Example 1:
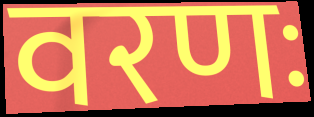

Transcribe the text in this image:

वरणः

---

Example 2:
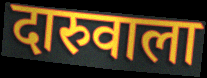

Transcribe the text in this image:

दारुवाला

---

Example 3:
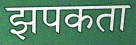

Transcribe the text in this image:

झपकता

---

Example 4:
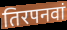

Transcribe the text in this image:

तिरपनवां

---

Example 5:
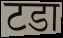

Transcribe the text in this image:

टडा